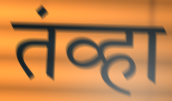
तंव्हा